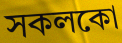
সকলকো